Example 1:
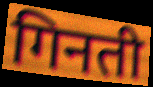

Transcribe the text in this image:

गिनती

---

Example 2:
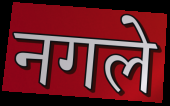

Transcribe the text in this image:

नगले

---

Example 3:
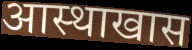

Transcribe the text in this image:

आस्थाखास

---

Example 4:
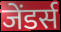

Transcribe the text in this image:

जेंडर्स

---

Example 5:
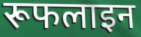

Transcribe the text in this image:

रूफलाइन